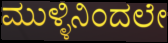
ಮುಳ್ಳಿನಿಂದಲೇ